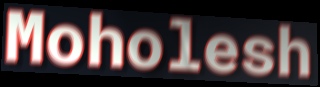
Moholesh